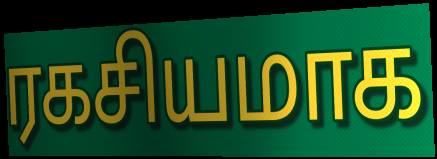
ரகசியமாக